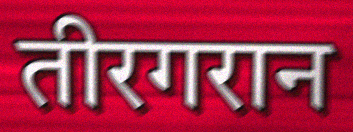
तीरगरान